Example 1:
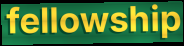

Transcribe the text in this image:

fellowship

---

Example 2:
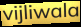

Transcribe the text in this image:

vijliwala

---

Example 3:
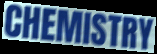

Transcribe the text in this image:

CHEMISTRY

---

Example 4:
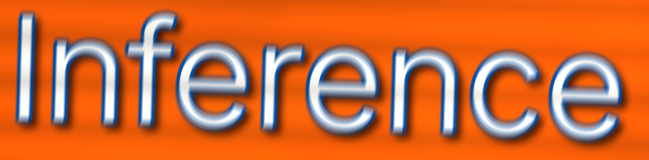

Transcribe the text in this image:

Inference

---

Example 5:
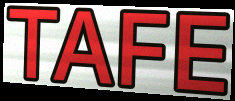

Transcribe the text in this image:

TAFE